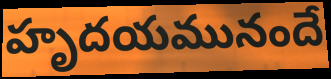
హృదయమునందే